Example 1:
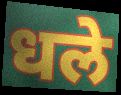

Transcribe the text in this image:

धले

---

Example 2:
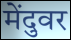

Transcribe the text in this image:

मेंदुवर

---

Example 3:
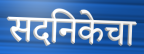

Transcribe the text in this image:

सदनिकेचा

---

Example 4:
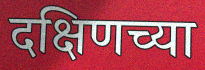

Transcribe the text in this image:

दक्षिणच्या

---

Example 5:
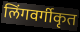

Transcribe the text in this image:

लिंगवर्गीकृत